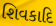
શિવકાદિ